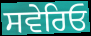
ਸਵੇਰਿਓ